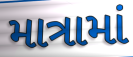
માત્રામાં